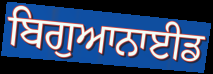
ਬਿਗੁਆਨਾਈਡ